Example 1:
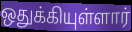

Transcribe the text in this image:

ஒதுக்கியுள்ளார்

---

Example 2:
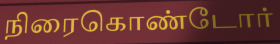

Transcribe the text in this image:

நிரைகொண்டோர்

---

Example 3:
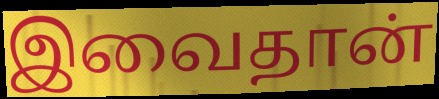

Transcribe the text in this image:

இவைதான்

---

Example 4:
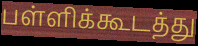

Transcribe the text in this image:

பள்ளிக்கூடத்து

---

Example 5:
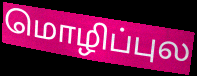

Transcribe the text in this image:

மொழிப்புல